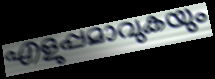
എളുപ്പമാവുകയും